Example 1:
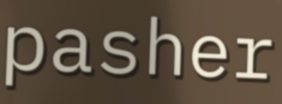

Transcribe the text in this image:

pasher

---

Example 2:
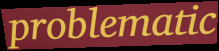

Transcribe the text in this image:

problematic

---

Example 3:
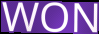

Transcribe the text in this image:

WON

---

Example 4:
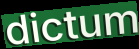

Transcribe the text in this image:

dictum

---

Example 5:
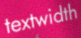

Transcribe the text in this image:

textwidth